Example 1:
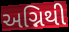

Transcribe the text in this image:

અગ્નિથી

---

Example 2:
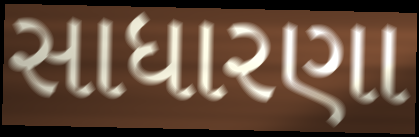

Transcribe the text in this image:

સાધારણા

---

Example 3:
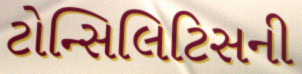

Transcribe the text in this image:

ટોન્સિલિટિસની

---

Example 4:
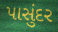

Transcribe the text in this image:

પાસુંદર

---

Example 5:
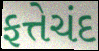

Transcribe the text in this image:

ફત્તેચંદ